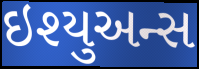
ઇશ્યુઅન્સ